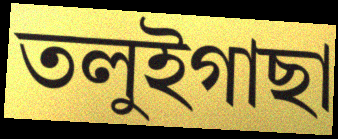
তলুইগাছা